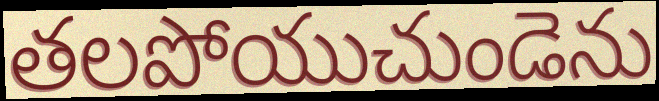
తలపోయుచుండెను